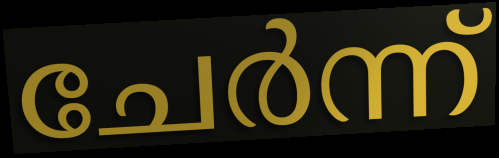
ചേർന്ന്